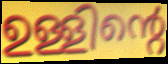
ഉള്ളിന്റെ